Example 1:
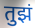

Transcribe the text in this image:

तुझं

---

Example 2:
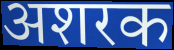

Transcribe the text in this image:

अशरक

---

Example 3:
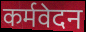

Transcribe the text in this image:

कर्मवेदन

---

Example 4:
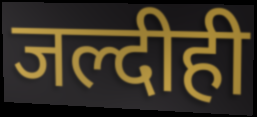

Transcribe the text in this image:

जल्दीही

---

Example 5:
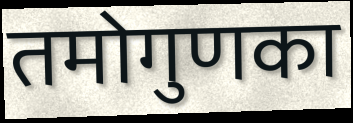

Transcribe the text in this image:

तमोगुणका